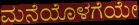
ಮನೆಯೊಳಗೆಯೇ